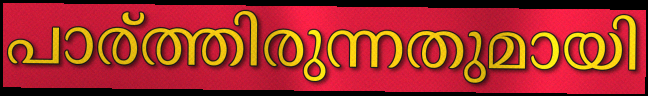
പാര്ത്തിരുന്നതുമായി